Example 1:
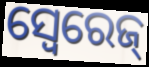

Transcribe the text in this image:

ସ୍ୱେରେଜ୍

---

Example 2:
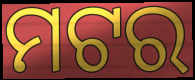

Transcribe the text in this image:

ମଟର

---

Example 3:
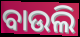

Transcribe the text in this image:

ବାଉଲି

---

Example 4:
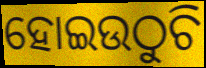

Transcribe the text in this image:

ହୋଇଉଠୁଚି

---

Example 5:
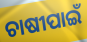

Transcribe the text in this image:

ଚାଷୀପାଇଁ